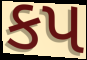
કપ